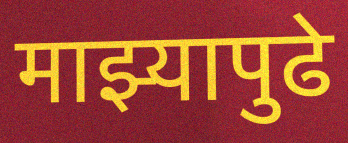
माझ्यापुढे